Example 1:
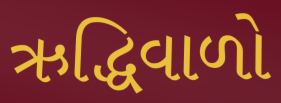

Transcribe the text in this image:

ઋદ્ધિવાળો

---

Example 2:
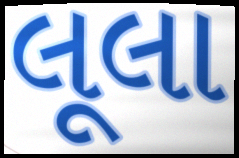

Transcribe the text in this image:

લૂલા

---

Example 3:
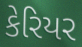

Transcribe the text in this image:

કેરિયર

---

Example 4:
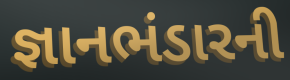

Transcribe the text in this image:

જ્ઞાનભંડારની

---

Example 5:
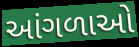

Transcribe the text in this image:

આંગળાઓ